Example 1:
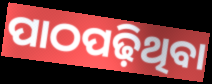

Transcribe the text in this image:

ପାଠପଢ଼ିଥିବା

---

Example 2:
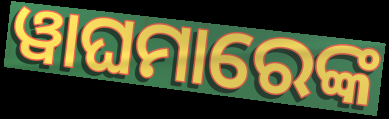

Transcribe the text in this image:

ୱାଘମାରେଙ୍କ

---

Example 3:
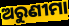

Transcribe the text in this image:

ଅରୁଣୀମା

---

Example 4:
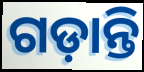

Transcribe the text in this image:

ଗଡ଼ାନ୍ତି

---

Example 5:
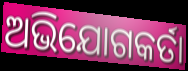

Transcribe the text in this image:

ଅଭିଯୋଗକର୍ତା